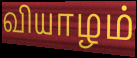
வியாழம்